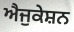
ਐਜੁਕੇਸ਼ਨ